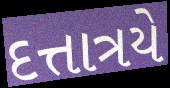
દત્તાત્રયે